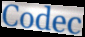
Codec